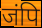
जंपि